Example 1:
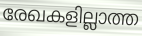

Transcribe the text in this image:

രേഖകളില്ലാത്ത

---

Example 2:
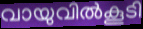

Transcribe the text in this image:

വായുവിൽകൂടി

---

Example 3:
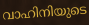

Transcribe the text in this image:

വാഹിനിയുടെ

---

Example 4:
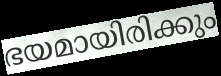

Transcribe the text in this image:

ഭയമായിരിക്കും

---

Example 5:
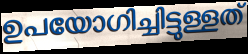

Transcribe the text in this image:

ഉപയോഗിച്ചിട്ടുള്ളത്